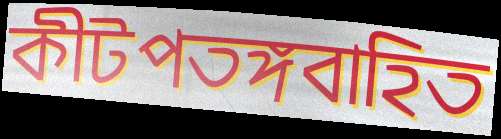
কীটপতঙ্গবাহিত